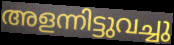
അളന്നിട്ടുവച്ചു